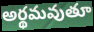
అర్థమవుతూ